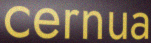
cernua